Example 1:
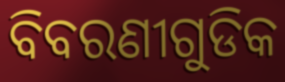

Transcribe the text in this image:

ବିବରଣୀଗୁଡିକ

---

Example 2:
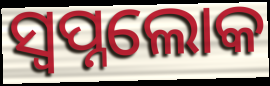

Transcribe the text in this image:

ସ୍ଵପ୍ନଲୋକ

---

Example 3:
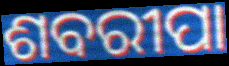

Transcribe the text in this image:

ଶବରୀପା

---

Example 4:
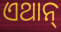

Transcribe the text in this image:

ଏଥାନ୍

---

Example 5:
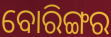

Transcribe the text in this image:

ବୋରିଙ୍ଗର